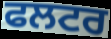
ਫਲਟਰ